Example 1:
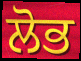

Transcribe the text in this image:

ਲੋਭ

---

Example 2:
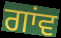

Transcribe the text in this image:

ਗਾਂਵ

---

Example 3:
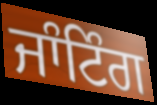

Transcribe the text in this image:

ਜਾੰਟਿੰਗ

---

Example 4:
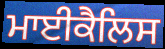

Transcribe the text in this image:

ਮਾਈਕੈਲਿਸ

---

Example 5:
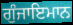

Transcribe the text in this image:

ਗੁੰਜਾਇਮਾਨ